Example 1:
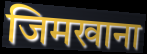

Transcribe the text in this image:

जिमखाना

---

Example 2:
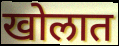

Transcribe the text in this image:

खोलात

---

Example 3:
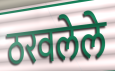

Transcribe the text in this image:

ठरवलेले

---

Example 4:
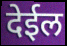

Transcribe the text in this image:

देईल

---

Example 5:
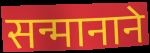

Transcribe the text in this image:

सन्मानाने